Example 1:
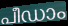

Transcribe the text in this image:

പീഡാം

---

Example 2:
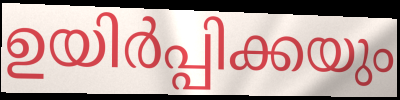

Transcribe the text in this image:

ഉയിർപ്പിക്കയും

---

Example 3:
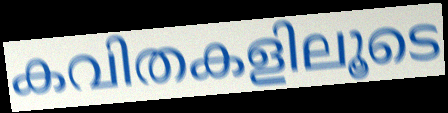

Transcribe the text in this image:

കവിതകളിലൂടെ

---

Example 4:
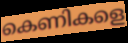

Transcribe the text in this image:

കെണികളെ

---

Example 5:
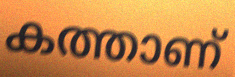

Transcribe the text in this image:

കത്താണ്